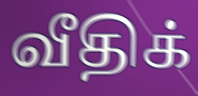
வீதிக்